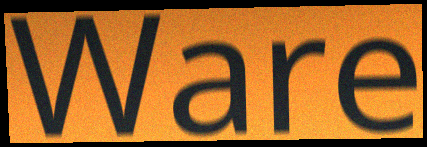
Ware